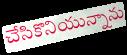
చేసికొనియున్నాను